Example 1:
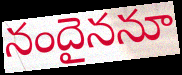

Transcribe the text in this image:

నందైననూ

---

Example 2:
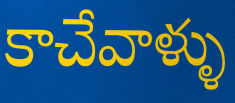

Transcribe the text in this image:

కాచేవాళ్ళు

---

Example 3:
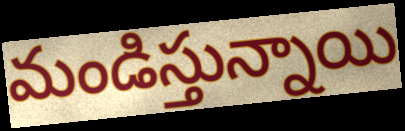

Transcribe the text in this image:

మండిస్తున్నాయి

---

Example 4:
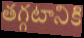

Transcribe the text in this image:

తగ్గటానికి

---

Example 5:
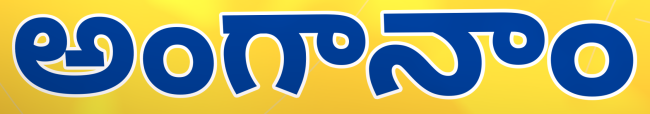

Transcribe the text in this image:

అంగానాం